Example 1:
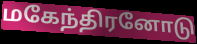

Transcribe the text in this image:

மகேந்திரனோடு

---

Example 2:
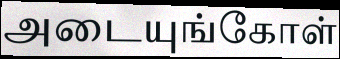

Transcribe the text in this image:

அடையுங்கோள்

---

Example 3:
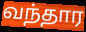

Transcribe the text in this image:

வந்தார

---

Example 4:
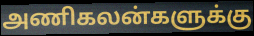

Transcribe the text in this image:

அணிகலன்களுக்கு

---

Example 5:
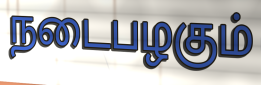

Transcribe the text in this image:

நடைபழகும்